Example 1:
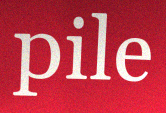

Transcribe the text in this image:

pile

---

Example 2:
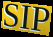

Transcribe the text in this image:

SIP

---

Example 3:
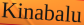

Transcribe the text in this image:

Kinabalu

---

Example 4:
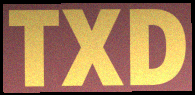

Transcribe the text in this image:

TXD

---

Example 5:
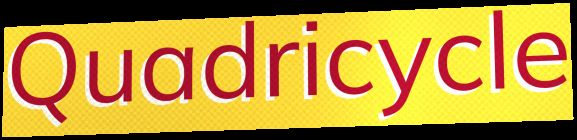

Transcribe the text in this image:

Quadricycle